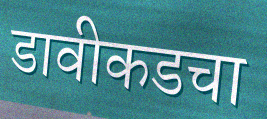
डावीकडचा